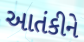
આતંકીને